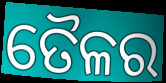
ତୈଳର